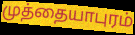
முத்தையாபுரம்